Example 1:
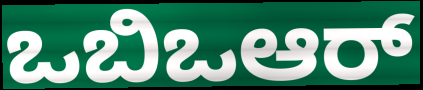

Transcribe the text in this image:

ಒಬಿಒಆರ್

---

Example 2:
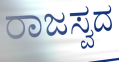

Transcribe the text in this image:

ರಾಜಸ್ವದ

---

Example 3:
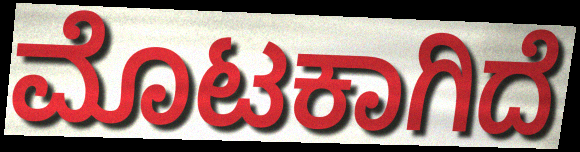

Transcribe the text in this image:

ಮೊಟಕಾಗಿದೆ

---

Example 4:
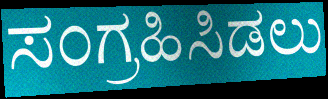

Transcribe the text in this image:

ಸಂಗ್ರಹಿಸಿಡಲು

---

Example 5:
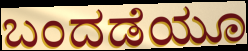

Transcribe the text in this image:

ಬಂದಡೆಯೂ